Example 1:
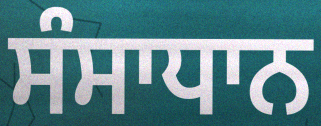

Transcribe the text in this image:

ਸੰਸਾਧਾਨ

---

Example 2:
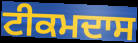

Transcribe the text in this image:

ਟੀਕਮਦਾਸ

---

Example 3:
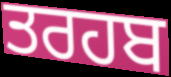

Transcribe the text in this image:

ਤਰਹਬ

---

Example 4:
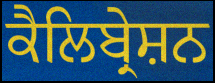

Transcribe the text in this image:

ਕੈਲਿਬ੍ਰੇਸ਼ਨ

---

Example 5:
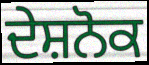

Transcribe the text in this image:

ਦੇਸ਼ਨੋਕ